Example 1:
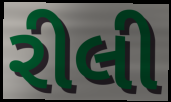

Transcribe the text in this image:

રીલી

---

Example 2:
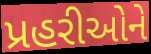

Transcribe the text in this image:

પ્રહરીઓને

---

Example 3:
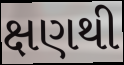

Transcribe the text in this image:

ક્ષણથી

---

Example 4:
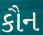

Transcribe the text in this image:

કૌન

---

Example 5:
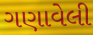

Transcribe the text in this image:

ગણાવેલી